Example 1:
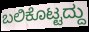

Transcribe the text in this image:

ಬಲಿಕೊಟ್ಟದ್ದು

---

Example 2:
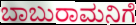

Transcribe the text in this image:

ಬಾಬುರಾಮನಿಗೆ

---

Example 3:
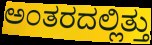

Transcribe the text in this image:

ಅಂತರದಲ್ಲಿತ್ತು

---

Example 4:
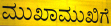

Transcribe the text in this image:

ಮುಖಾಮುಖಿಗೆ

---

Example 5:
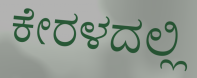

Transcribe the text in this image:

ಕೇರಳದಲ್ಲಿ